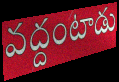
వద్దంటాడు